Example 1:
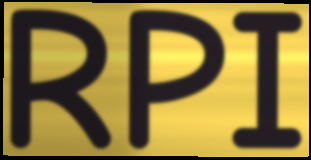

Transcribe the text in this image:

RPI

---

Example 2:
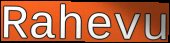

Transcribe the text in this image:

Rahevu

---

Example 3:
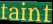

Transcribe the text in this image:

taint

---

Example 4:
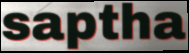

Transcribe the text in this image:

saptha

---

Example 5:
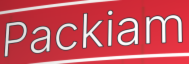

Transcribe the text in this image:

Packiam